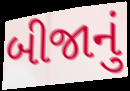
બીજાનું